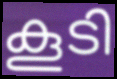
കൂടി